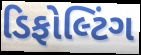
ડિફોલ્ટિંગ